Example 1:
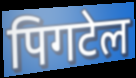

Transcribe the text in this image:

पिगटेल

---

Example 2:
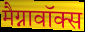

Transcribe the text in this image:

मैग्नावॉक्स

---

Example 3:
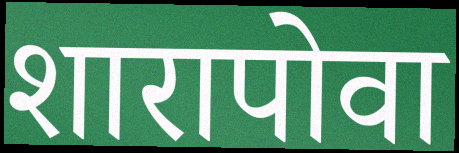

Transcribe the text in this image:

शारापोवा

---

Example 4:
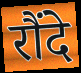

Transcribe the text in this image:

रौंदे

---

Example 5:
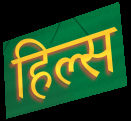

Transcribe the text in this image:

हिल्स